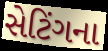
સેટિંગના